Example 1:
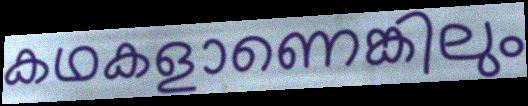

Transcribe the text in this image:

കഥകളാണെങ്കിലും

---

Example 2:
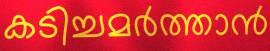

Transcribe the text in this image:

കടിച്ചമർത്താൻ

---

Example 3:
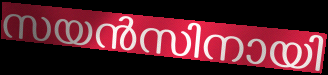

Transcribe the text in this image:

സയൻസിനായി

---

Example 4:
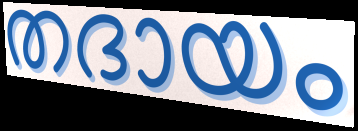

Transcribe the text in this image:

തദായം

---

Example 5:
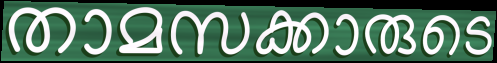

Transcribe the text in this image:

താമസക്കാരുടെ